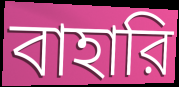
বাহারি